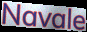
Navale